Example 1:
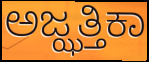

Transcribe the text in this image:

ಅಜ್ಝತ್ತಿಕಾ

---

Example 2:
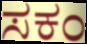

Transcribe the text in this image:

ಸಕಂ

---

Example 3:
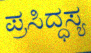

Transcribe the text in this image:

ಪ್ರಸಿದ್ಧಸ್ಯ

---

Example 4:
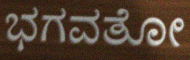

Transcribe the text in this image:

ಭಗವತೋ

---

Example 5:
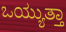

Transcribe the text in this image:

ಒಯ್ಯುತ್ತಾ